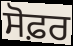
ਸੋਫ਼ਰ